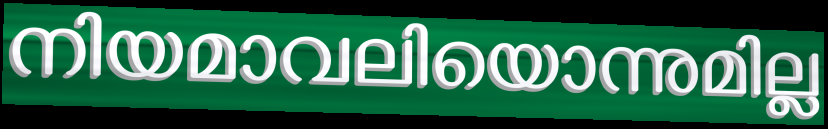
നിയമാവലിയൊന്നുമില്ല